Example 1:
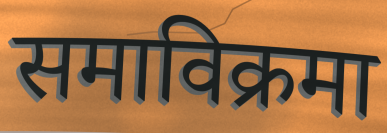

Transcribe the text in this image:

समाविक्रमा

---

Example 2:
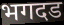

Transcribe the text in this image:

भगदड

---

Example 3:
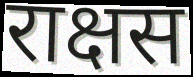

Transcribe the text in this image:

राक्षस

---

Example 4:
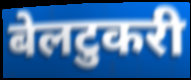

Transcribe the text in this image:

बेलटुकरी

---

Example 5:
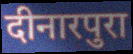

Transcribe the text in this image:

दीनारपुरा